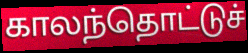
காலந்தொட்டுச்